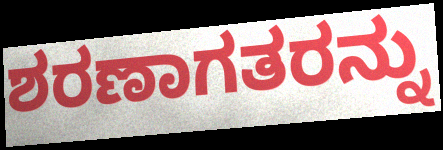
ಶರಣಾಗತರನ್ನು